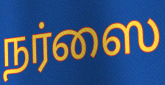
நர்ஸை